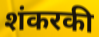
शंकरकी